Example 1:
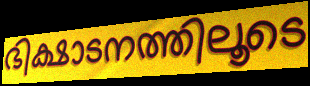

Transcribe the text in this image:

ഭിക്ഷാടനത്തിലൂടെ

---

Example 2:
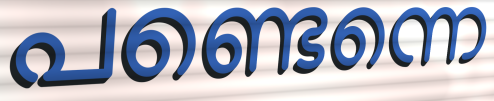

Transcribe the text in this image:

പണ്ടെന്നെ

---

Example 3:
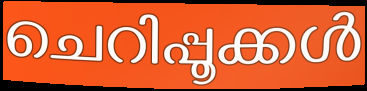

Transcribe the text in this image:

ചെറിപ്പൂക്കൾ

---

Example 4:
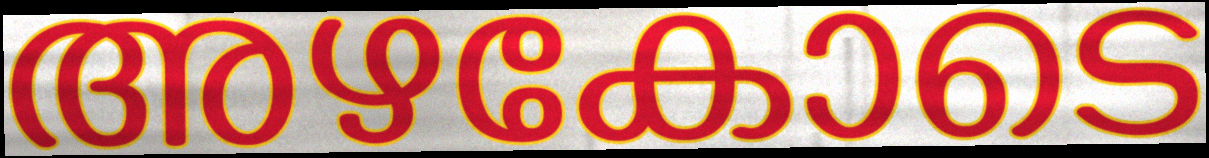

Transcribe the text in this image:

അഴകോടെ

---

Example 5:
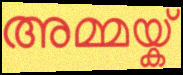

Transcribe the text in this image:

അമ്മയ്ക്